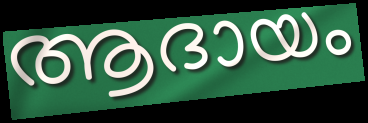
ആദായം